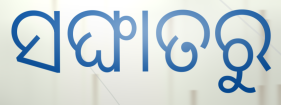
ସଙ୍ଘାତରୁ